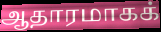
ஆதாரமாகக்